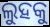
ଲୁହକୁ